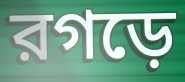
রগড়ে